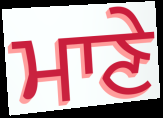
ਮਾਣੇ